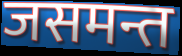
जसमन्त